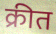
क्रीत